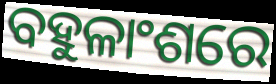
ବହୁଳାଂଶରେ